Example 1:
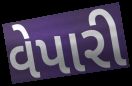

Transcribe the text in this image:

વેપારી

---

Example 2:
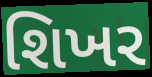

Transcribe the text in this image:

શિખર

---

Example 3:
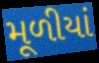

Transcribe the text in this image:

મૂળીયાં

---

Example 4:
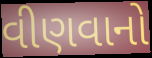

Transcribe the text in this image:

વીણવાનો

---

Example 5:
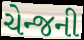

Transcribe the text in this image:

ચેન્જની